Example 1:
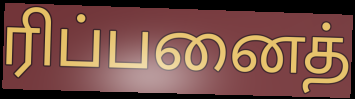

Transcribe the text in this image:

ரிப்பனைத்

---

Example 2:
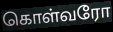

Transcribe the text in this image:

கொள்வரோ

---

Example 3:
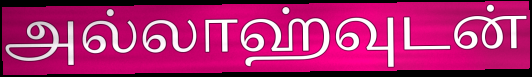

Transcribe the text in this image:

அல்லாஹ்வுடன்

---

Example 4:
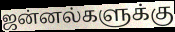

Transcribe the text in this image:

ஜன்னல்களுக்கு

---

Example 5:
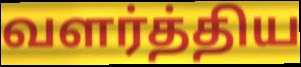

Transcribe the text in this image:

வளர்த்திய